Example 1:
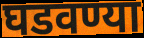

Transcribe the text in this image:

घडवण्या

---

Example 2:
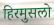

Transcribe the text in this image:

हिरमुसलो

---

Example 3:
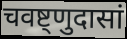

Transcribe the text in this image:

चवष्ट्णुदासां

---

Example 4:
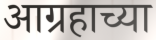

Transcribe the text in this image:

आग्रहाच्या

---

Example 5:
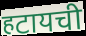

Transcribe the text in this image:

हटायची